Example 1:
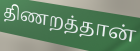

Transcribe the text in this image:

திணறத்தான்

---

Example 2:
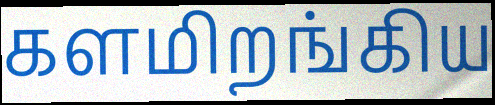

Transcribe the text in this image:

களமிறங்கிய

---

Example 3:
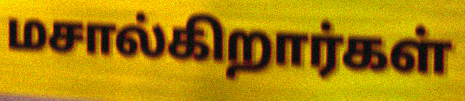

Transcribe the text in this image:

மசால்கிறார்கள்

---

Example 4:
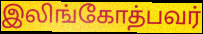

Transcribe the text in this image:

இலிங்கோத்பவர்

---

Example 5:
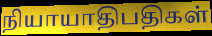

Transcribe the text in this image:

நியாயாதிபதிகள்